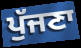
ਪੁੱਜਣਾ